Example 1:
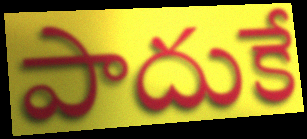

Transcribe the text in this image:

పాదుకే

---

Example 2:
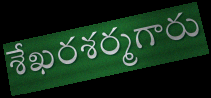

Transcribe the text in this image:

శేఖరశర్మగారు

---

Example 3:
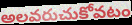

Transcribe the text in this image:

అలవరుచుకోవటం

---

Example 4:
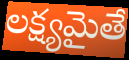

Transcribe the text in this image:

లక్ష్యమైతే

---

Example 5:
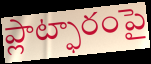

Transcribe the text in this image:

ప్లాట్ఫారంపై